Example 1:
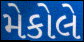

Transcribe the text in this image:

મેકોલે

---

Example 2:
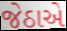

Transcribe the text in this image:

જેઠાએ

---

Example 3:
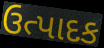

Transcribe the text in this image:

ઉત્પાદક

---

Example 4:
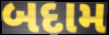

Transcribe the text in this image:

બદામ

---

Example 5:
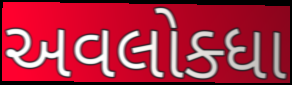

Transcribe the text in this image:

અવલોક્ધા